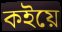
কইয়ে